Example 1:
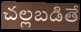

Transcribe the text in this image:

చల్లబడితే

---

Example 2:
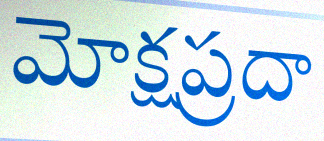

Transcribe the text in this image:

మోక్షప్రదా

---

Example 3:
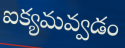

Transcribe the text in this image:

ఐక్యమవ్వడం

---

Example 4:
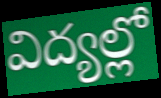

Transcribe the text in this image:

విద్యల్లో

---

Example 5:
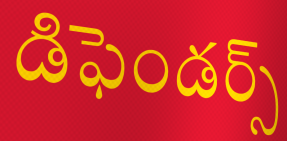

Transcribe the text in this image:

డిఫెండర్స్